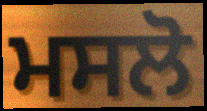
ਮਸਲੋ